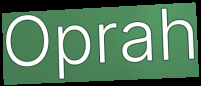
Oprah